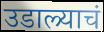
उडाल्याचं